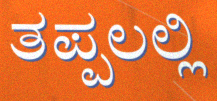
ತಪ್ಪಲಲ್ಲಿ